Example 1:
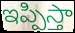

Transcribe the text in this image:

ఇప్పిస్తా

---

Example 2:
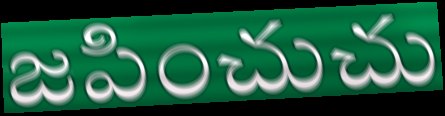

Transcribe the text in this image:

జపించుచు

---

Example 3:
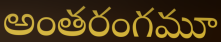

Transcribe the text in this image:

అంతరంగమూ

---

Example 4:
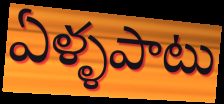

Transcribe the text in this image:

ఏళ్ళపాటు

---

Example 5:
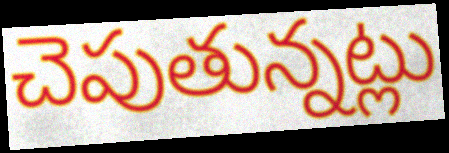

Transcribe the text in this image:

చెపుతున్నట్లు